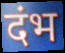
दंभ